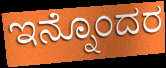
ಇನ್ನೊಂದರ